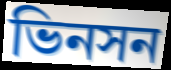
ভিনসন